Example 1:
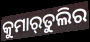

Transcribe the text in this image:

କୁମାର୍‌ତୁଲିର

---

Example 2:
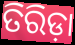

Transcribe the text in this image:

ତିରିଡ଼ା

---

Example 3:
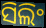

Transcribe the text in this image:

ସିଲିଂ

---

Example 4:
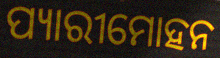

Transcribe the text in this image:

ପ୍ୟାରୀମୋହନ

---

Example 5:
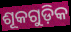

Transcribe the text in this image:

ଶୂକଗୁଡ଼ିକ